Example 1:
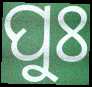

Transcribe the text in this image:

ପୁଃ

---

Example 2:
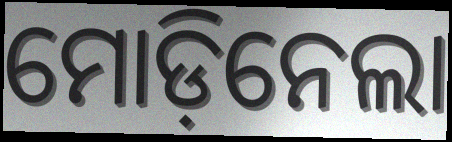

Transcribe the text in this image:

ମୋଡ଼ିନେଲା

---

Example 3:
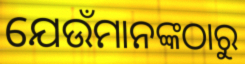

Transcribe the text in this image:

ଯେଉଁମାନଙ୍କଠାରୁ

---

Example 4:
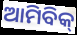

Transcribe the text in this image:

ଆମିବିକ୍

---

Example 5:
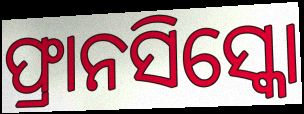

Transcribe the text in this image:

ଫ୍ରାନସିସ୍କୋ